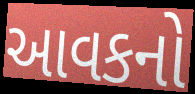
આવકનો